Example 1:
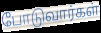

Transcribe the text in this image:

போடுவார்கள்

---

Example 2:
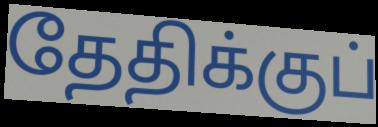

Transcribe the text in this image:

தேதிக்குப்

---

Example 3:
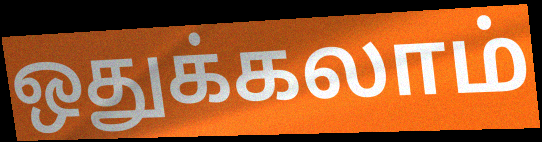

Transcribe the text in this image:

ஒதுக்கலாம்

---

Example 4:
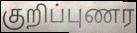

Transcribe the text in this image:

குறிப்புணர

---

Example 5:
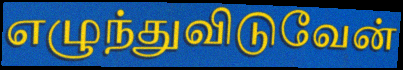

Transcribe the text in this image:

எழுந்துவிடுவேன்